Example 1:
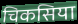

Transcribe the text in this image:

चिकसिया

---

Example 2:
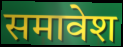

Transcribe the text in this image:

समावेश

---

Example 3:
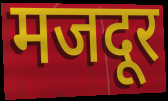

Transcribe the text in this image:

मजदूर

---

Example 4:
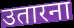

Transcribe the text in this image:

उतारना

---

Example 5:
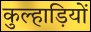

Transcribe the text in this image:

कुल्हाड़ियों